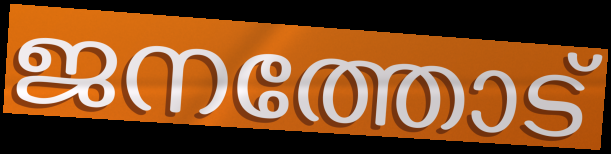
ജനത്തോട്